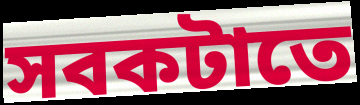
সবকটাতে